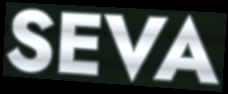
SEVA